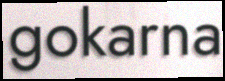
gokarna